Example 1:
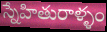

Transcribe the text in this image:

స్నేహితురాళ్ళం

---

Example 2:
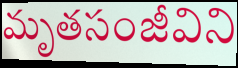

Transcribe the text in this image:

మృతసంజీవిని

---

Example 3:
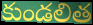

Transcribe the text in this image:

కుండలిత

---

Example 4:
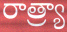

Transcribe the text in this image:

రాత్ర్యా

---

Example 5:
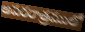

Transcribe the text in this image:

అపరరాత్రములో